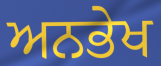
ਅਨਭੇਖ